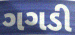
ગગડી